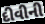
દીવીની